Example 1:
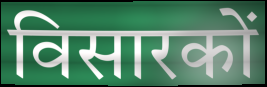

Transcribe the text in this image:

विसारकों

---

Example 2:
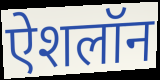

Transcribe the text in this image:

ऐशलॉन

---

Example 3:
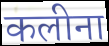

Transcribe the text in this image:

कलीना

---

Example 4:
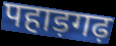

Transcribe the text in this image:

पहाड़गढ़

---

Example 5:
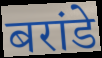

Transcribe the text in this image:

बरांडे